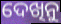
ଦେଖିନୁ